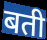
बती